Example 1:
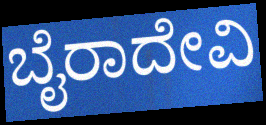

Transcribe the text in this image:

ಬೈರಾದೇವಿ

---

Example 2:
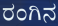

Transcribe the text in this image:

ರಂಗಿನ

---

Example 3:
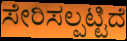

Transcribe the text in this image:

ಸೇರಿಸಲ್ಪಟ್ಟಿದೆ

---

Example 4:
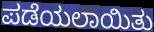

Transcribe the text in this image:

ಪಡೆಯಲಾಯಿತು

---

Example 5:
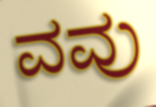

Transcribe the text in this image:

ವವು